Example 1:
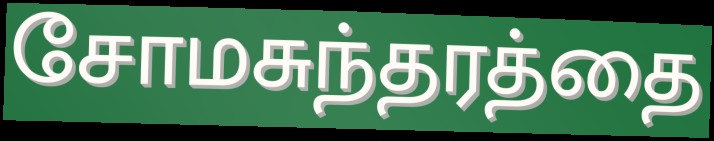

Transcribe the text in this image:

சோமசுந்தரத்தை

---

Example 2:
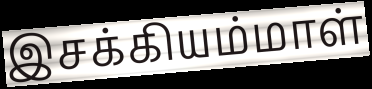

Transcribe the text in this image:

இசக்கியம்மாள்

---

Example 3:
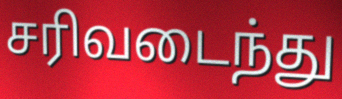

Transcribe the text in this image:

சரிவடைந்து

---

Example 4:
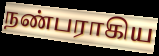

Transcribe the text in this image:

நண்பராகிய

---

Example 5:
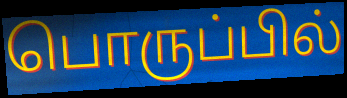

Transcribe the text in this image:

பொருப்பில்